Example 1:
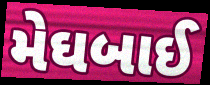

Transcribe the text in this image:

મેઘબાઈ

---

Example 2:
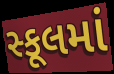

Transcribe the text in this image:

સ્કૂલમાં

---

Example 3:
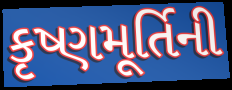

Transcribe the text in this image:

કૃષ્ણમૂર્તિની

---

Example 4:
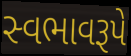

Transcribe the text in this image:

સ્વભાવરૂપે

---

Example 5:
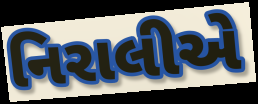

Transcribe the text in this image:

નિરાલીએ